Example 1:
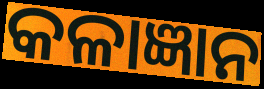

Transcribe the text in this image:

କଳାଜ୍ଞାନ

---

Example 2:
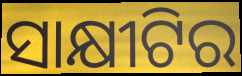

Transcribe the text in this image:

ସାକ୍ଷୀଟିର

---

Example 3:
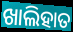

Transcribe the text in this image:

ଖାଲିହାତ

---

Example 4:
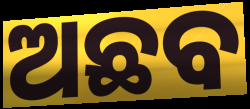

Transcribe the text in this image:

ଅଛବ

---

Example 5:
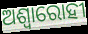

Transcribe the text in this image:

ଅଶ୍ଵାରୋହୀ